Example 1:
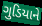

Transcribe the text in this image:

ગુડિયાને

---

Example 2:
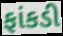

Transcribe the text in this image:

ફાંકડી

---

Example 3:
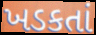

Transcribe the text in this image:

ખડકતાં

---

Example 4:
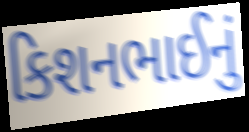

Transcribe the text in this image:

કિશનભાઈનું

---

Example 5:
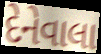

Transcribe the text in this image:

દેનેવાલા